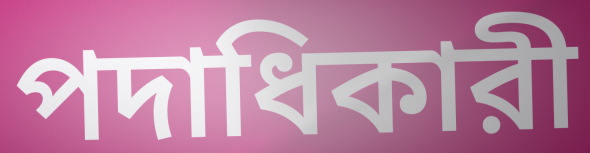
পদাধিকারী